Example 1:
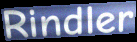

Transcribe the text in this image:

Rindler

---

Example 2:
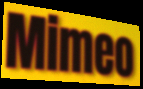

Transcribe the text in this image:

Mimeo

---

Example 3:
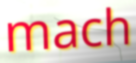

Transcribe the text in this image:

mach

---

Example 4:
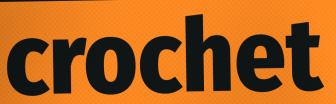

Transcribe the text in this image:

crochet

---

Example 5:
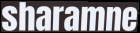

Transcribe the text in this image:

sharamne